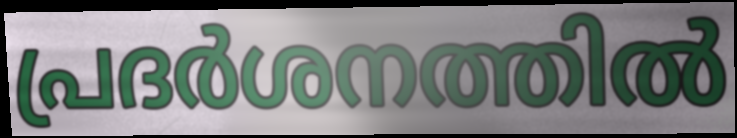
പ്രദർശനത്തിൽ